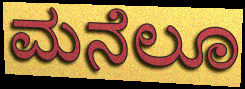
ಮನೆಲೂ